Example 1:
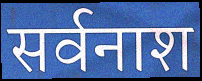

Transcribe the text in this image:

सर्वनाश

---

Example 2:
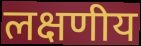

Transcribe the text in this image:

लक्षणीय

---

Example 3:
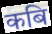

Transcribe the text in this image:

कबि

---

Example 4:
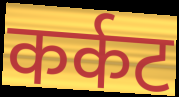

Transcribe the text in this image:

कर्कट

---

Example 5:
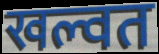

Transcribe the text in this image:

खल्वत